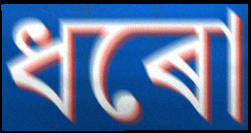
ধৰো